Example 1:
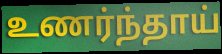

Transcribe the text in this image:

உணர்ந்தாய்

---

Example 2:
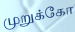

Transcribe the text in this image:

முறுக்கோ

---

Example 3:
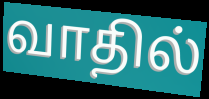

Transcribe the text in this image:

வாதில்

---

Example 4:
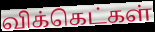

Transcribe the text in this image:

விக்கெட்கள்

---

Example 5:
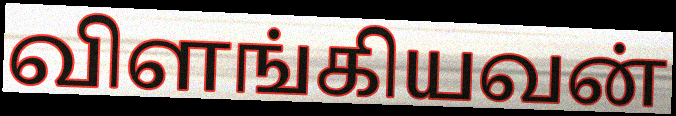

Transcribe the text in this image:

விளங்கியவன்